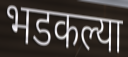
भडकल्या